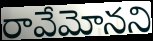
రావేమోనని